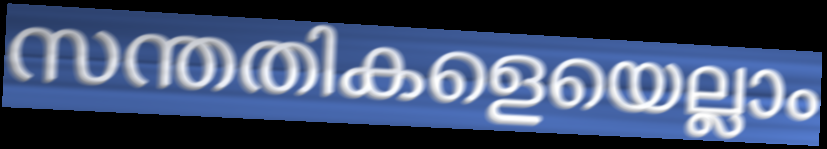
സന്തതികളെയെല്ലാം